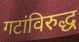
गटांविरुद्ध